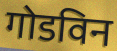
गोडविन